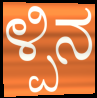
ಳ್ಪಿನ